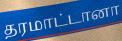
தரமாட்டானா